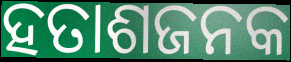
ହତାଶଜନକ